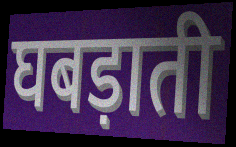
घबड़ाती